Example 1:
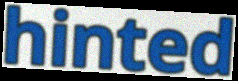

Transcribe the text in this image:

hinted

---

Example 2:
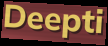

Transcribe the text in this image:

Deepti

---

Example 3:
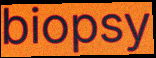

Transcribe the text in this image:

biopsy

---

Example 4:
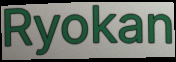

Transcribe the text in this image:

Ryokan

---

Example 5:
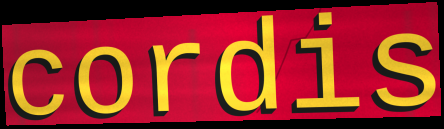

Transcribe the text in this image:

cordis